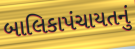
બાલિકાપંચાયતનું